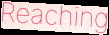
Reaching